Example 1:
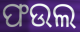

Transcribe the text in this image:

ଫଉଲ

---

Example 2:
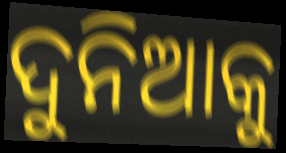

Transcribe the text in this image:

ଦୁନିଆକୁ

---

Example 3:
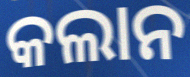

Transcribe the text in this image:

କଲାନ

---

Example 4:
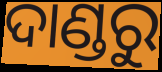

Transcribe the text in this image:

ଦାଣ୍ଡରୁ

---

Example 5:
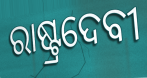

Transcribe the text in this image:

ରାଷ୍ଟ୍ରଦେବୀ